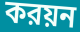
করয়ন